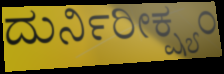
ದುರ್ನಿರೀಕ್ಷ್ಯಂ